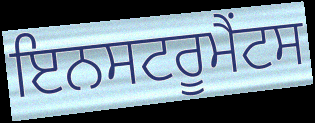
ਇਨਸਟਰੂਮੈਂਟਸ